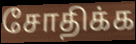
சோதிக்க